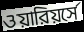
ওয়ারিয়র্সে